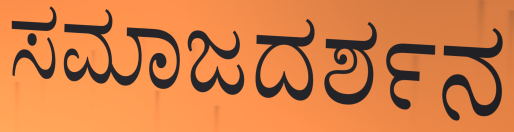
ಸಮಾಜದರ್ಶನ